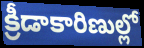
క్రీడాకారిణుల్లో